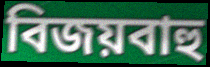
বিজয়বাহু